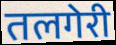
तलगेरी